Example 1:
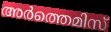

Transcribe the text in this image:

അർത്തെമിസ്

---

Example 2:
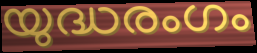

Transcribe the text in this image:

യുദ്ധരംഗം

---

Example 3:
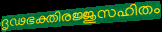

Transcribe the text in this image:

ദൃഢഭക്തിരജ്ജുസഹിതം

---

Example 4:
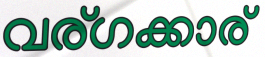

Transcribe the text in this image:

വര്ഗക്കാര്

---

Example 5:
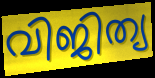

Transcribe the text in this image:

വിജിത്യ